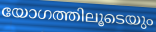
യോഗത്തിലൂടെയും